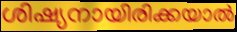
ശിഷ്യനായിരിക്കയാൽ